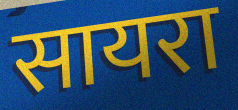
सायरा